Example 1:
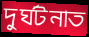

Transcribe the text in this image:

দুৰ্ঘটনাত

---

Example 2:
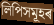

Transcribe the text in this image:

লিপিসমূহৰ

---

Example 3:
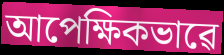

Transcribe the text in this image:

আপেক্ষিকভাৱে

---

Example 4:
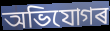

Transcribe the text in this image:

অভিযোগৰ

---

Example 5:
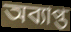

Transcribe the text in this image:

অব্যাপ্ত